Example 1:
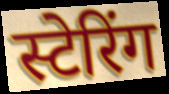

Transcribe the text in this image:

स्टेरिंग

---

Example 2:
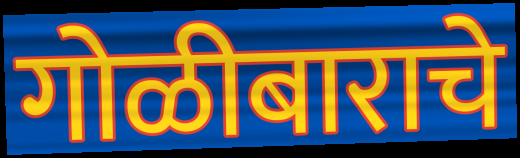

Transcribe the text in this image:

गोळीबाराचे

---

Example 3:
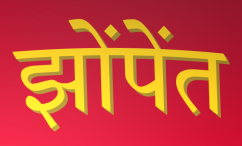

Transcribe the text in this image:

झोंपेंत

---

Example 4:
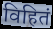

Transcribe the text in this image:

विहितं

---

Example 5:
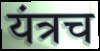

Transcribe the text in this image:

यंत्रच